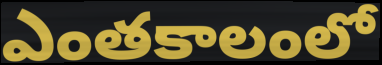
ఎంతకాలంలో